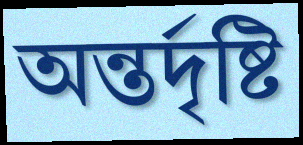
অন্তৰ্দৃষ্টি